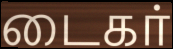
டைகர்